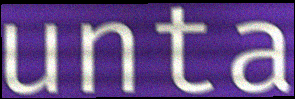
unta